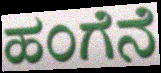
ಹಂಗೆನೆ